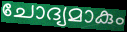
ചോദ്യമാകും